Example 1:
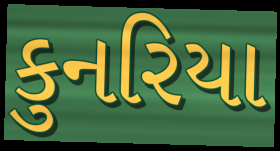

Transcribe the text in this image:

કુનરિયા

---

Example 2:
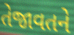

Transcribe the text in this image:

તેજાવતને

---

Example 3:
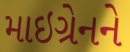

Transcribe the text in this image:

માઇગ્રેનને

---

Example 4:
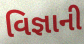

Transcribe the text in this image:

વિજ્ઞાની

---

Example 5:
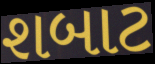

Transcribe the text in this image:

શબાટ